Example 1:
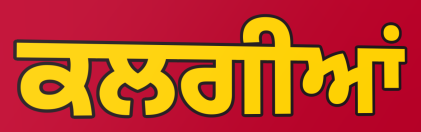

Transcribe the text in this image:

ਕਲਗੀਆਂ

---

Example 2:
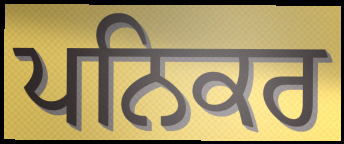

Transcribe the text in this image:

ਪਨਿਕਰ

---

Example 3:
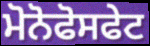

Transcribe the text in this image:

ਮੋਨੋਫੋਸਫੇਟ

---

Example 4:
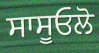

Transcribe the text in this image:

ਸਾਸੂਓਲੋ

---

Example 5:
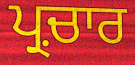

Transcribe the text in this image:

ਪ਼੍ਰਚਾਰ